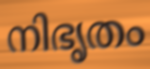
നിഭൃതം